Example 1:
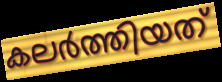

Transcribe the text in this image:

കലർത്തിയത്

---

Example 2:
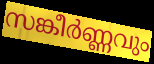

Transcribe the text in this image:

സങ്കീർണ്ണവും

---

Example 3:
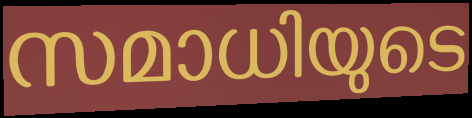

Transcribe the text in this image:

സമാധിയുടെ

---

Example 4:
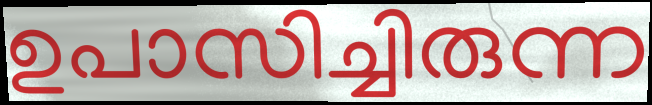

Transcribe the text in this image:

ഉപാസിച്ചിരുന്ന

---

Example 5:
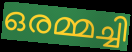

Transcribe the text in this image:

ഒരമ്മച്ചി